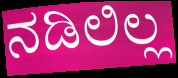
ನಡಿಲಿಲ್ಲ